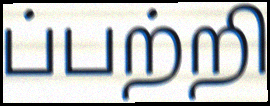
ப்பற்றி